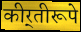
कीर्तीरूपे